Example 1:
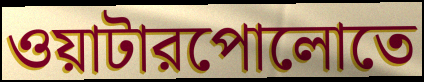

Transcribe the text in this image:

ওয়াটারপোলোতে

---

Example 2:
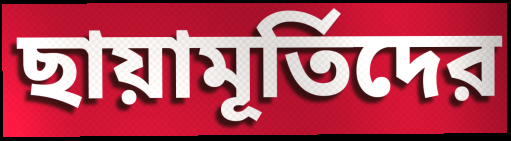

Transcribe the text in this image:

ছায়ামূর্তিদের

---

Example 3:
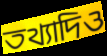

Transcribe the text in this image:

তথ্যাদিও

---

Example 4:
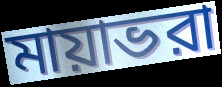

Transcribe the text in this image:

মায়াভরা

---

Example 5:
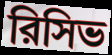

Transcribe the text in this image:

রিসিভ